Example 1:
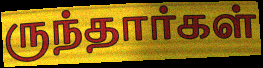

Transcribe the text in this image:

ருந்தார்கள்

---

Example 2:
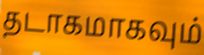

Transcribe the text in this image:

தடாகமாகவும்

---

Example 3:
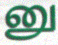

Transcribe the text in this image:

னு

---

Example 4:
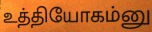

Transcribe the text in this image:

உத்தியோகம்னு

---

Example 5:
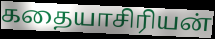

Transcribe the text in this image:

கதையாசிரியன்